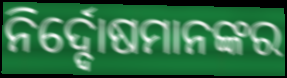
ନିର୍ଦ୍ଦୋଷମାନଙ୍କର